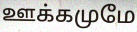
ஊக்கமுமே